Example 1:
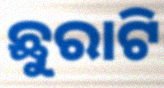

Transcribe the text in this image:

ଛୁରାଟି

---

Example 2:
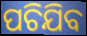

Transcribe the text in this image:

ପଚିଯିବ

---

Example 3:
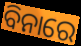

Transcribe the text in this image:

ବିନାରେ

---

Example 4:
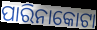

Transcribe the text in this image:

ପାରିନାକୋଟା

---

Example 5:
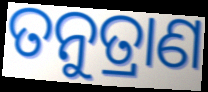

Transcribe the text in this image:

ତନୁତ୍ରାଣ